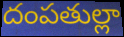
దంపతుల్లా